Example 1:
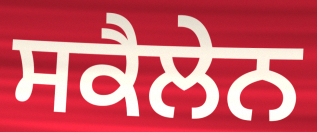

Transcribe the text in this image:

ਸਕੈਲੇਨ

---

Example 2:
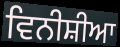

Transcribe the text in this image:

ਵਿਨੀਸ਼ੀਆ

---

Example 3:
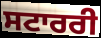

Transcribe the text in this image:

ਸਟਾਰਰੀ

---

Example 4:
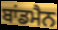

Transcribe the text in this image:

ਬਾਂਡਮੈਨ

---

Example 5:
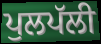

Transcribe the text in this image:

ਪੁਲਪੱਲੀ